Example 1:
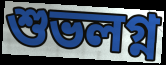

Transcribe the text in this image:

শুভলগ্ন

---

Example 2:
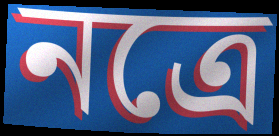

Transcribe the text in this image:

নত্রে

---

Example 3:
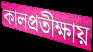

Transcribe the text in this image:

কালপ্রতীক্ষায়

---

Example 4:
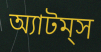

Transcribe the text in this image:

অ্যাটম্‌স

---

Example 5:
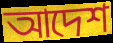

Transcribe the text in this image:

আদেশ